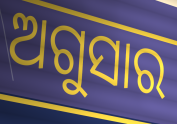
ଅଗୁସାର